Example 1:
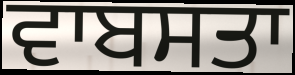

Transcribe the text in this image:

ਵਾਬਸਤਾ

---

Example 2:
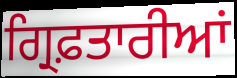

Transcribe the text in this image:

ਗ੍ਰਿਫ਼ਤਾਰੀਆਂ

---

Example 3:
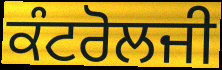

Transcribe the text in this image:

ਕੰਟਰੋਲਜੀ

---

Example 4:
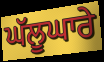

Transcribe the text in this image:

ਘੱਲੂਘਾਰੇ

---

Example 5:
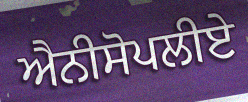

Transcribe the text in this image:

ਐਨੀਸੋਪਲੀਏ